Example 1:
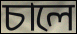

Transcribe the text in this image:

চালে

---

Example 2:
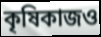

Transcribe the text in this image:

কৃষিকাজও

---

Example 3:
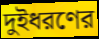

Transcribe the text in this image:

দুইধরণের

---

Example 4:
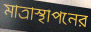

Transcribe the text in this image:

মাত্রাস্থাপনের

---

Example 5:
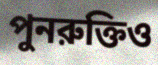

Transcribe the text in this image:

পুনরুক্তিও